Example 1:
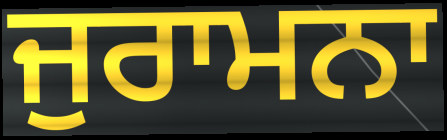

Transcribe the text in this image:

ਜੁਰਾਮਨਾ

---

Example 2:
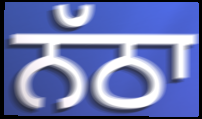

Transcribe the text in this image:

ਨੱਠਾ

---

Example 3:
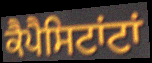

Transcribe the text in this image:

ਕੈਪੈਸਿਟਾਂਟਾਂ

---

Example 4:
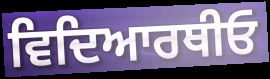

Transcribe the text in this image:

ਵਿਦਿਆਰਥੀਓ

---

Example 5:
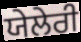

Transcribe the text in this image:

ਯੇਲੇਰੀ